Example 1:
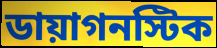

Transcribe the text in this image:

ডায়াগনস্টিক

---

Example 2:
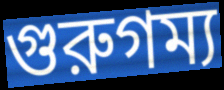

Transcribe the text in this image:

গুরুগম্য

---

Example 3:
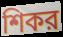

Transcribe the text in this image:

শিকর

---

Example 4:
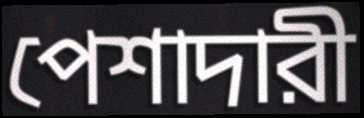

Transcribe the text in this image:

পেশাদারী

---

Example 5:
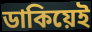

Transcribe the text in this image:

ডাকিয়েই